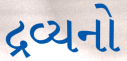
દ્રવ્યનો